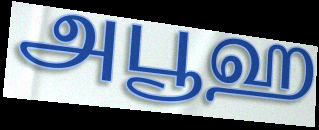
அபூஹ